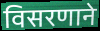
विसरणाने